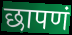
छापणं